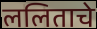
ललिताचे